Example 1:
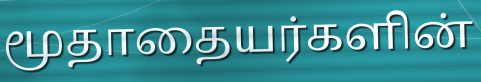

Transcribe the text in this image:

மூதாதையர்களின்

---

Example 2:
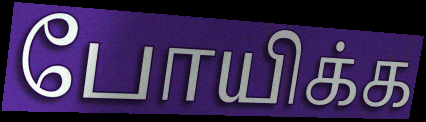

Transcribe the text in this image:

போயிக்க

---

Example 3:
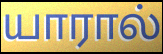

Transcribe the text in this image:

யாரால்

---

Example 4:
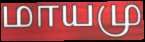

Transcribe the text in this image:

மாயமு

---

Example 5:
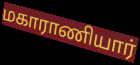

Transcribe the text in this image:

மகாராணியார்